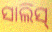
ସାଲିସ୍